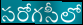
సరోగసీలో